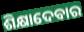
ଶିକ୍ଷାଦେବାର